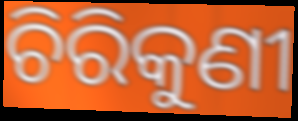
ଚିରିକୁଣୀ